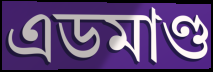
এডমাণ্ড